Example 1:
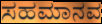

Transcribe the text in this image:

ಸಹಮಾನವ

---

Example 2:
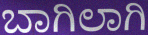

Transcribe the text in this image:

ಬಾಗಿಲಾಗಿ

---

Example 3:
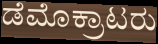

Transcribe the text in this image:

ಡೆಮೊಕ್ರಾಟರು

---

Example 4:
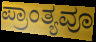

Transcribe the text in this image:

ಪ್ರಾಂತ್ಯವೂ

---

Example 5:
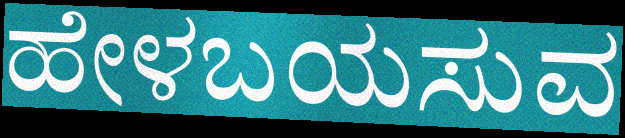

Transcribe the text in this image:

ಹೇಳಬಯಸುವ